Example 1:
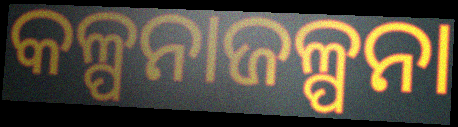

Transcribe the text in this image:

କଳ୍ପନାଜଳ୍ପନା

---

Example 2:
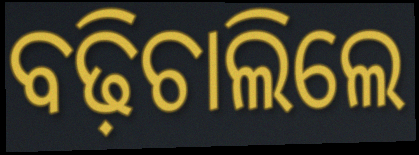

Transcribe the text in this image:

ବଢ଼ିଚାଲିଲେ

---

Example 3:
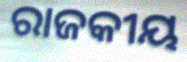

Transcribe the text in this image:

ରାଜକୀୟ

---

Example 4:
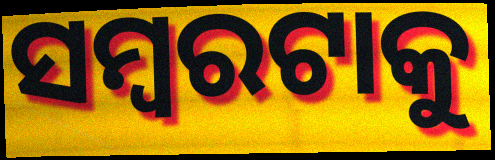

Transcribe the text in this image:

ସମ୍ବରଟାକୁ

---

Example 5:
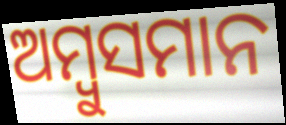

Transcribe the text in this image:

ଅମ୍ବୁସମାନ